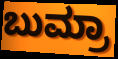
ಬುಮ್ರಾ